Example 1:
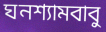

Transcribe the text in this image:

ঘনশ্যামবাবু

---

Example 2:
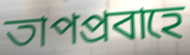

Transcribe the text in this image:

তাপপ্রবাহে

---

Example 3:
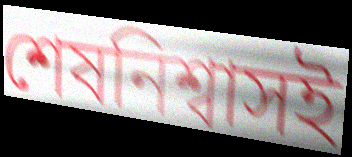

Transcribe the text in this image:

শেষনিশ্বাসই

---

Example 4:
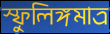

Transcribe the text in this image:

স্ফুলিঙ্গমাত্র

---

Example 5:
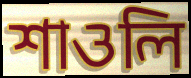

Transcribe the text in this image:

শাওলি